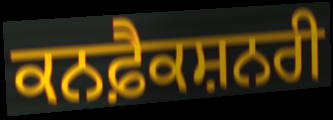
ਕਨਫ਼ੈਕਸ਼ਨਰੀ